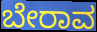
ಬೇರಾವ